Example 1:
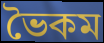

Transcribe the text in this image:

ভৈকম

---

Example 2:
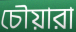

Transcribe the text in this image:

চৌয়ারা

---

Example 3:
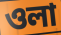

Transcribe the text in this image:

ওলা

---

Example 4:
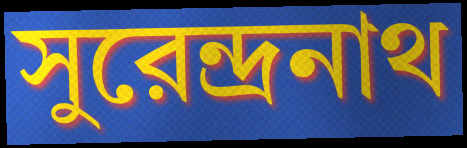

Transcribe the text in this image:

সুরেন্দ্রনাথ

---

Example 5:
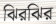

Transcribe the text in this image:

ঝিরঝির